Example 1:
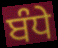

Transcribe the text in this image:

ਬੰਧੇ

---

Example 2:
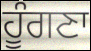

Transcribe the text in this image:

ਹੂੰਗਣਾ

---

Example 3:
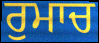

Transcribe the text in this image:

ਰੁਮਾਚ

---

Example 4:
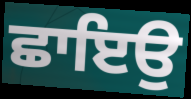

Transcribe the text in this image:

ਛਾਇਉ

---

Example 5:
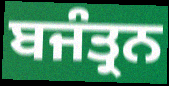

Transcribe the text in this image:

ਬਜੰਤ੍ਰਨ